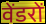
वेंडरों